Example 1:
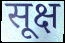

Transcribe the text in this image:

सूक्ष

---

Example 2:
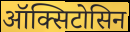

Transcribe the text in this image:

ऑक्सिटोसिन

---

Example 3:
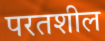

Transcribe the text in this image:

परतशील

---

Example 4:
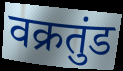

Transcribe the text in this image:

वक्रतुंड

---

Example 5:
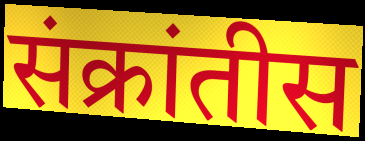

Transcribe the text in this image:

संक्रांतीस